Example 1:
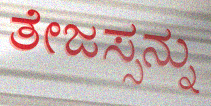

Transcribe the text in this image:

ತೇಜಸ್ಸನ್ನು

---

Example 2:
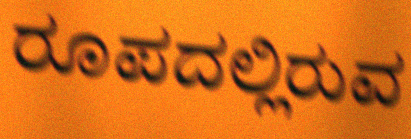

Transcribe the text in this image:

ರೂಪದಲ್ಲಿರುವ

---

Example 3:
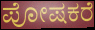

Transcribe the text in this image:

ಪೋಷಕರೆ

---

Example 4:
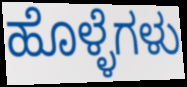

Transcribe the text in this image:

ಹೊಳ್ಳೆಗಳು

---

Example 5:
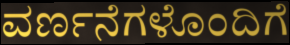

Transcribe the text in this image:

ವರ್ಣನೆಗಳೊಂದಿಗೆ